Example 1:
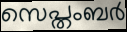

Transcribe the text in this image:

സെപ്തംബർ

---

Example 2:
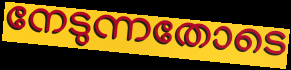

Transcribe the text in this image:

നേടുന്നതോടെ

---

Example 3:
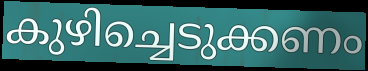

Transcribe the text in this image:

കുഴിച്ചെടുക്കണം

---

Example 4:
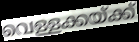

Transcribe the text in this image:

വെള്ളക്കയ്ക്ക്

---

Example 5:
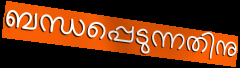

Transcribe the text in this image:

ബന്ധപ്പെടുന്നതിനു